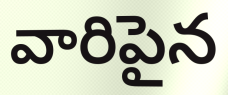
వారిపైన